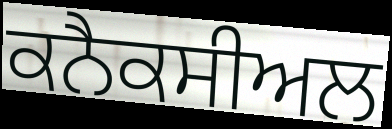
ਕਨੈਕਸੀਅਲ